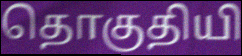
தொகுதியி